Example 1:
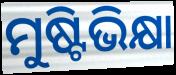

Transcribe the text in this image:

ମୁଷ୍ଟିଭିକ୍ଷା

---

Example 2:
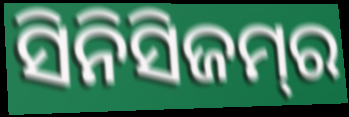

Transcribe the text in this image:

ସିନିସିଜମ୍‌ର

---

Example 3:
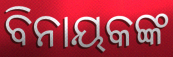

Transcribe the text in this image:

ବିନାୟକଙ୍କ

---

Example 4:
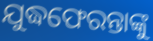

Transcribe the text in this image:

ଯୁଦ୍ଧଫେରନ୍ତାଙ୍କୁ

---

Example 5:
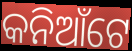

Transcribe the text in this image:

କନିଆଁଟେ